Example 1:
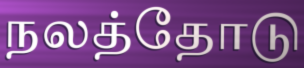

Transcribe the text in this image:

நலத்தோடு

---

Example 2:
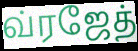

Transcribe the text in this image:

வ்ரஜேத்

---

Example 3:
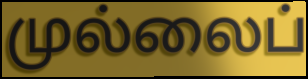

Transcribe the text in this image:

முல்லைப்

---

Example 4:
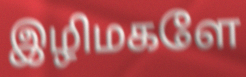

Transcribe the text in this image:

இழிமகளே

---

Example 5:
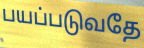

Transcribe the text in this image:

பயப்படுவதே